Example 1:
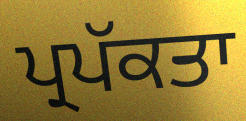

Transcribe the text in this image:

ਪ੍ਰਪੱਕਤਾ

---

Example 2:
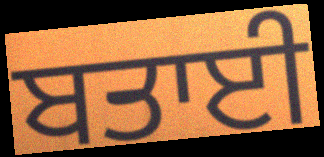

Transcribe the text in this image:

ਬਤਾਈ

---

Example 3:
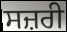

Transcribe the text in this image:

ਸਜ਼ਰੀ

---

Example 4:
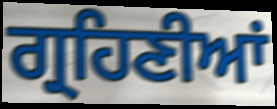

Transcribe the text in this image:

ਗ੍ਰਹਿਣੀਆਂ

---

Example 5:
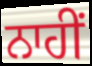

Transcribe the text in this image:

ਨਾਹੀਂ